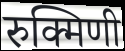
रुक्मिणी